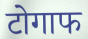
टोगाफ